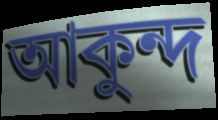
আকুন্দ